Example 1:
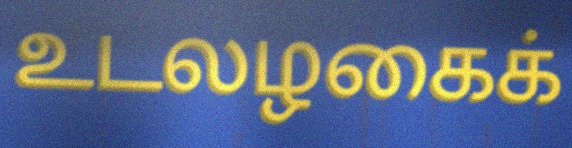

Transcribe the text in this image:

உடலழகைக்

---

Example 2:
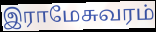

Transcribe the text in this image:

இராமேசுவரம்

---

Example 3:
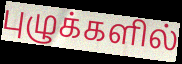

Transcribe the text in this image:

புழுக்களில்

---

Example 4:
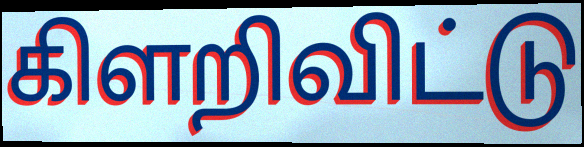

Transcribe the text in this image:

கிளறிவிட்டு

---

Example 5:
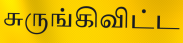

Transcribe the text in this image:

சுருங்கிவிட்ட